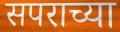
सपराच्या